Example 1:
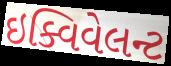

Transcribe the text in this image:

ઇક્વિવેલન્ટ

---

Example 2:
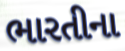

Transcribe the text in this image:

ભારતીના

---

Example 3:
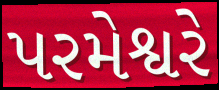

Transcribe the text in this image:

પરમેશ્વરે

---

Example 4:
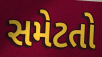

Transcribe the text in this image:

સમેટતો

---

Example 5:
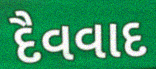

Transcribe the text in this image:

દૈવવાદ